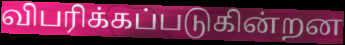
விபரிக்கப்படுகின்றன